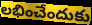
లభించేందుకు